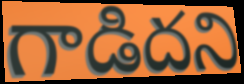
గాడిదని